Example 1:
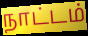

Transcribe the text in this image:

நாட்டம்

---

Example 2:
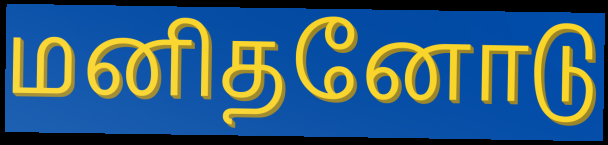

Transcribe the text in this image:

மனிதனோடு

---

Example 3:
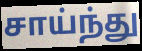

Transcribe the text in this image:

சாய்ந்து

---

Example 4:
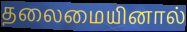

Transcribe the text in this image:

தலைமையினால்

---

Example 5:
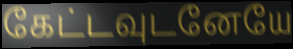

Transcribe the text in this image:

கேட்டவுடனேயே